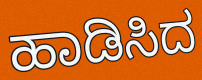
ಹಾಡಿಸಿದ